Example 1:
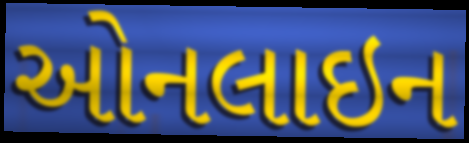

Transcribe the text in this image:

ઓનલાઇન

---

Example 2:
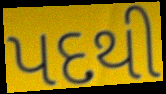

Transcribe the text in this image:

પદથી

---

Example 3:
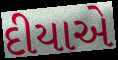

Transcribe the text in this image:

દીયાએ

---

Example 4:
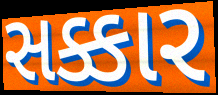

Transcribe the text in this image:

સક્કાર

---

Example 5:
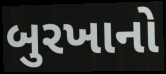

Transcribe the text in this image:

બુરખાનો